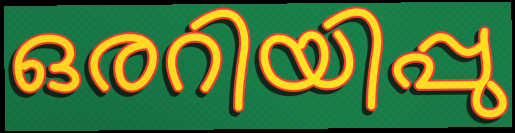
ഒരറിയിപ്പു